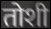
तोशी